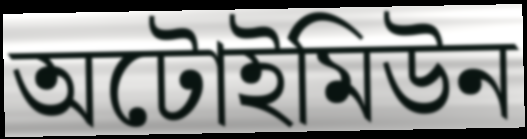
অটোইমিউন